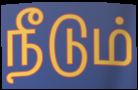
நீடும்